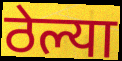
ठेल्या